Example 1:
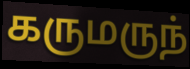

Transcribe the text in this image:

கருமருந்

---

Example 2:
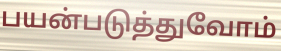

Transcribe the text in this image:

பயன்படுத்துவோம்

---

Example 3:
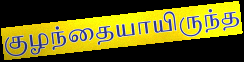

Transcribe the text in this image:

குழந்தையாயிருந்த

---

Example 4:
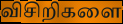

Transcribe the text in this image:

விசிறிகளை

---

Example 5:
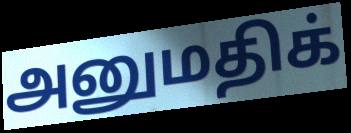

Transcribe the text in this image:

அனுமதிக்